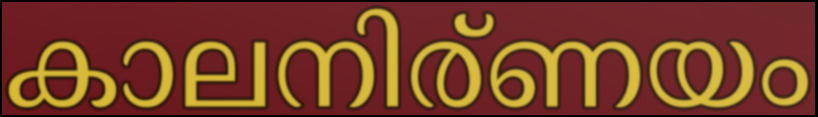
കാലനിര്ണയം